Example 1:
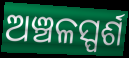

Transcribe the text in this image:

ଅଞ୍ଚଳସ୍ପର୍ଶ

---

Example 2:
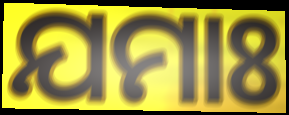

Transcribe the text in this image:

ଯମାଃ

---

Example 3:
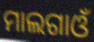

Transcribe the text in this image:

ମାଲଗାଓଁ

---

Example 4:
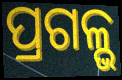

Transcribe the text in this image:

ପ୍ରଗଳ୍ଭ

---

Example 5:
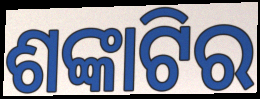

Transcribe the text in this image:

ଶଙ୍କାଟିର